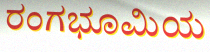
ರಂಗಭೂಮಿಯ